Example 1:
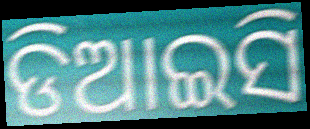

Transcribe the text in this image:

ଡିଆଇସି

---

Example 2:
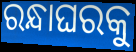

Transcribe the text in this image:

ରନ୍ଧାଘରକୁ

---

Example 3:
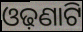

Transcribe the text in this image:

ଓଢ଼ଣାଟି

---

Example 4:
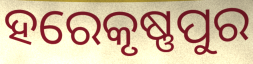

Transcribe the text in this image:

ହରେକୃଷ୍ଣପୁର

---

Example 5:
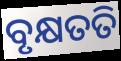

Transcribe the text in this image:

ବୃକ୍ଷତତି